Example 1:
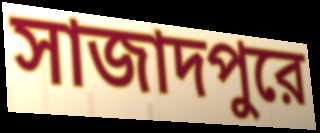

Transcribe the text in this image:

সাজাদপুরে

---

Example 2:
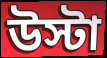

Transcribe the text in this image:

উস্টা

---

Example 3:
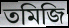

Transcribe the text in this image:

তমিজি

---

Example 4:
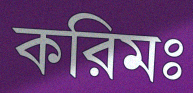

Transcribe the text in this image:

করিমঃ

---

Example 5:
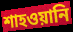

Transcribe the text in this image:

শাহওয়ানি